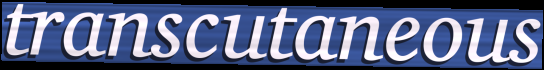
transcutaneous